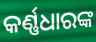
କର୍ଣ୍ଣଧାରଙ୍କ